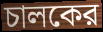
চালকের